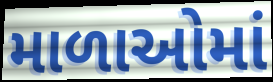
માળાઓમાં